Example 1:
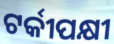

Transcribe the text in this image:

ଟର୍କୀପକ୍ଷୀ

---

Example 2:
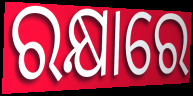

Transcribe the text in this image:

ରକ୍ଷାରେ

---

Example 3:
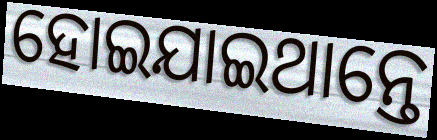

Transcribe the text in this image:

ହୋଇଯାଇଥାନ୍ତେ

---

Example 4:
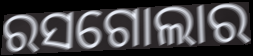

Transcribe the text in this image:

ରସଗୋଲାର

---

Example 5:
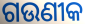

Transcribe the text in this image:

ଗଉଣୀକ